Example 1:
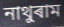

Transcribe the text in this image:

নাথুৰাম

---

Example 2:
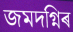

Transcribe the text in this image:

জমদগ্নিৰ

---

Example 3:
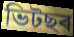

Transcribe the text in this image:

ভিটছৰ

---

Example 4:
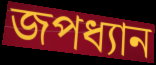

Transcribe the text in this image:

জপধ্যান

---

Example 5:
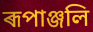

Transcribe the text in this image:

ৰূপাঞ্জলি